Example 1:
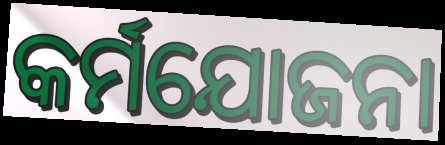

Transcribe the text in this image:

କର୍ମଯୋଜନା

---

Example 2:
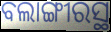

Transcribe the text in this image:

ବଲାଙ୍ଗୀରସ୍ଥ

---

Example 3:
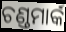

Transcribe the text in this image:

ଚଣ୍ଡମାର୍କ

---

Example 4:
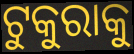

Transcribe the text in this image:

ଟୁକୁରାକୁ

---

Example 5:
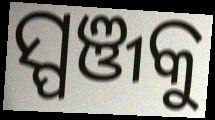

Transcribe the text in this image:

ସ୍ପଞ୍ଜକୁ